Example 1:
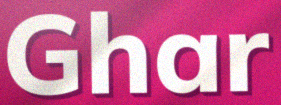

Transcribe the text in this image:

Ghar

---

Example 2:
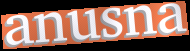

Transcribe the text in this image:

anusna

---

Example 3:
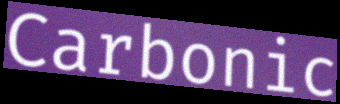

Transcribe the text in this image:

Carbonic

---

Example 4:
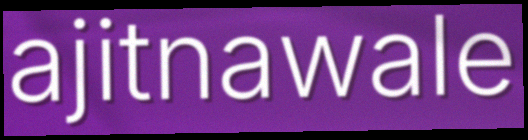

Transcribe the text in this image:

ajitnawale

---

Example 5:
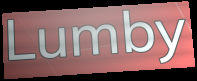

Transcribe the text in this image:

Lumby